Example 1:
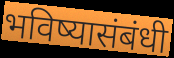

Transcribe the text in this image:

भविष्यासंबंधी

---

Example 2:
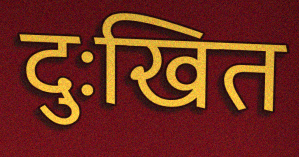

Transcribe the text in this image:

दुःखित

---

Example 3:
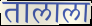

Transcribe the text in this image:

तालाला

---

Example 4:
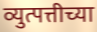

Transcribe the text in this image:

व्युत्पत्तीच्या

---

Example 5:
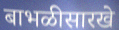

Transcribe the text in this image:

बाभळीसारखे